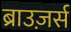
ब्राउज़र्स